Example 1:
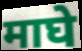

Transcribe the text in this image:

माघे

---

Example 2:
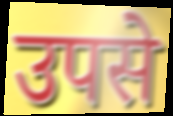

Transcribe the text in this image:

उपसे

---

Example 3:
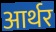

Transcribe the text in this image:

आर्थर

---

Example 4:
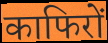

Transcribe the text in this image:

काफिरों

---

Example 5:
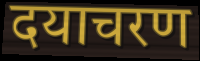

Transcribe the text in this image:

दयाचरण